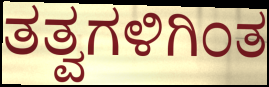
ತತ್ವಗಳಿಗಿಂತ